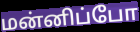
மன்னிப்போ